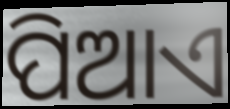
ପିଆଏ